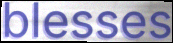
blesses